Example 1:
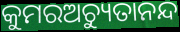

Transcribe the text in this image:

କୁମରଅଚ୍ୟୁତାନନ୍ଦ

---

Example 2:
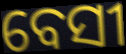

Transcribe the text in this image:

ବେସୀ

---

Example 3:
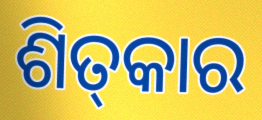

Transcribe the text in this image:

ଶିତ୍‍କାର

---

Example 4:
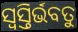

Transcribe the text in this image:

ସ୍ୱସ୍ତିର୍ଭବତୁ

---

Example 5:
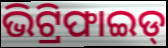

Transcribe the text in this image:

ଭିଟ୍ରିଫାଇଡ୍